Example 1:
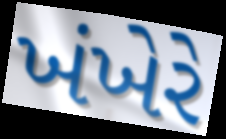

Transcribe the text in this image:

ખંખેરે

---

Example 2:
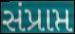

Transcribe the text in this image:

સંપ્રાપ્ત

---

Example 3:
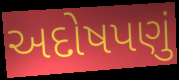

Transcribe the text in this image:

અદોષપણું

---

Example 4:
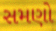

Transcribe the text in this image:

સમણો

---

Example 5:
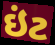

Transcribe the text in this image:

ઇંટ